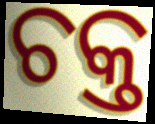
ଚକ୍ତ